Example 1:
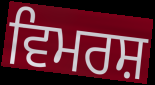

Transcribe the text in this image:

ਵਿਮਰਸ਼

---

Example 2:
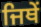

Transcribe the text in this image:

ਜਿਥੇਂ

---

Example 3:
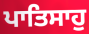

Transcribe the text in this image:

ਪਾਤਿਸਾਹੁ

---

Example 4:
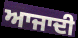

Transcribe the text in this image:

ਆਜਾਦੀ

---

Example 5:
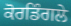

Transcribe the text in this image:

ਕੋਰਡਿੰਗਲੇ